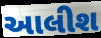
આલીશ